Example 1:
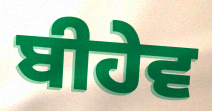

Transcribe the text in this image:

ਬੀਹੇਵ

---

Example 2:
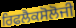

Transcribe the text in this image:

ਰਿਫਲੈਕਸੋਲੋਜੀ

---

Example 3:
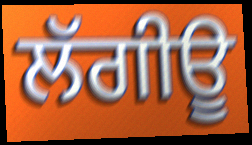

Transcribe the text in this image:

ਲੱਗੀਊ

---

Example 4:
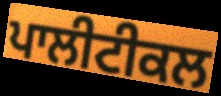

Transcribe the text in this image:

ਪਾਲੀਟੀਕਲ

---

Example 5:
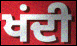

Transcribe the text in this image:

ਖਂਦੀ